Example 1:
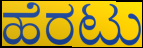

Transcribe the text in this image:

ಹೆರಟು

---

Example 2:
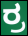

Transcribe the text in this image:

ರ್ರ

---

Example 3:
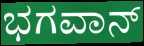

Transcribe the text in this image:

ಭಗವಾನ್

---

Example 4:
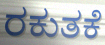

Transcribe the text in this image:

ರಕುತಕೆ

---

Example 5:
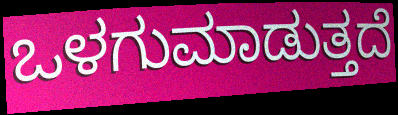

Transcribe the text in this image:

ಒಳಗುಮಾಡುತ್ತದೆ